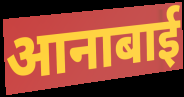
आनाबाई